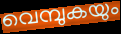
വെമ്പുകയും